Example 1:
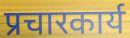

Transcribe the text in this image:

प्रचारकार्य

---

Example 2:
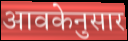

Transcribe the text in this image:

आवकेनुसार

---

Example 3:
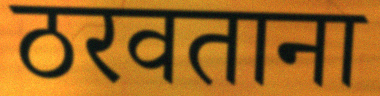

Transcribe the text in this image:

ठरवताना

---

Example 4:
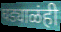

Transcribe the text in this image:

घड्याळंही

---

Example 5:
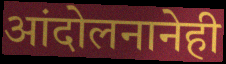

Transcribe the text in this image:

आंदोलनानेही